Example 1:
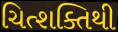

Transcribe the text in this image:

ચિત્શક્તિથી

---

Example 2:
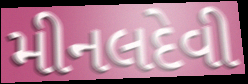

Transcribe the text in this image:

મીનલદેવી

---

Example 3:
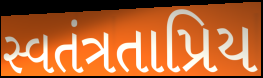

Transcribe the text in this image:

સ્વતંત્રતાપ્રિય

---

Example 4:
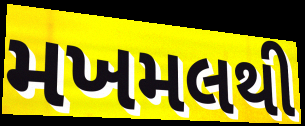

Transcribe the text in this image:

મખમલથી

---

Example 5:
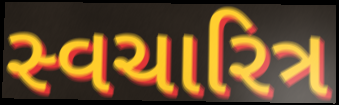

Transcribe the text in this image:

સ્વચારિત્ર